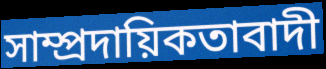
সাম্প্রদায়িকতাবাদী